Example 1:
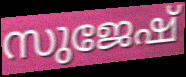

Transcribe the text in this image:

സുജേഷ്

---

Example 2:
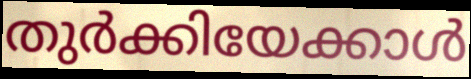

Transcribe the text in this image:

തുർക്കിയേക്കാൾ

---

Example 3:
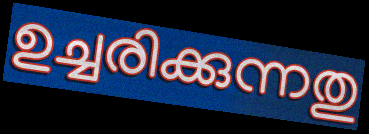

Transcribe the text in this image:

ഉച്ചരിക്കുന്നതു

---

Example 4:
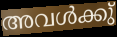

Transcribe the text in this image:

അവൾക്കു്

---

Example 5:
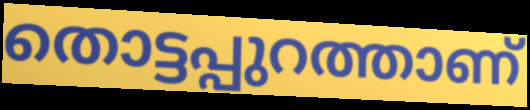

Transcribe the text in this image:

തൊട്ടപ്പുറത്താണ്